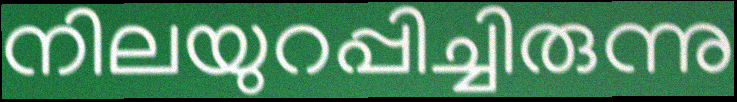
നിലയുറപ്പിച്ചിരുന്നു